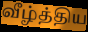
வீழ்த்திய